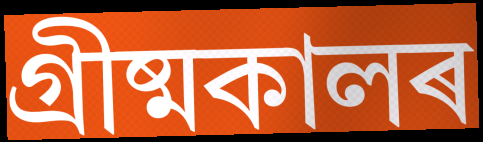
গ্ৰীষ্মকালৰ